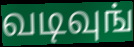
வடிவுங்